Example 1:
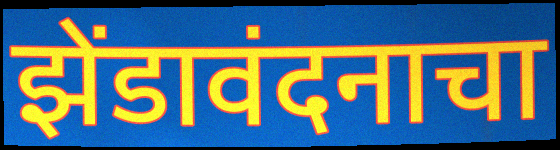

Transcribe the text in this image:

झेंडावंदनाचा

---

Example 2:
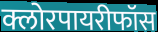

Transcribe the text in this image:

क्लोरपायरीफॉस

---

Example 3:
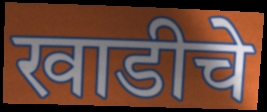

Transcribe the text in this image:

खाडीचे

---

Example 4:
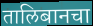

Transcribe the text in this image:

तालिबानचा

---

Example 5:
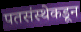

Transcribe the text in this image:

पतसंस्थेकडून